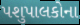
પશુપાલકોના